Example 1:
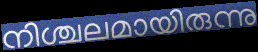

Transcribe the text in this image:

നിശ്ചലമായിരുന്നു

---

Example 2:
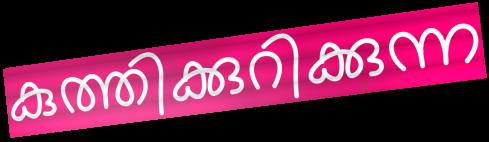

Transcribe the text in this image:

കുത്തിക്കുറിക്കുന്ന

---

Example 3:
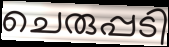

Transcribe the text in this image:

ചെരുപ്പടി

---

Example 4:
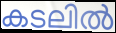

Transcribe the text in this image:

കടലിൽ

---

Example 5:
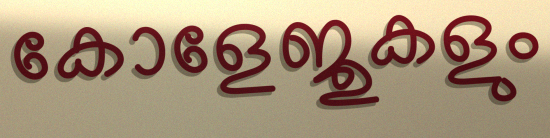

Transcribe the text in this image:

കോളേജുകളും